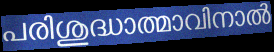
പരിശുദ്ധാത്മാവിനാൽ